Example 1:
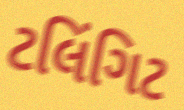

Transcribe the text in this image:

ટલિંગિટ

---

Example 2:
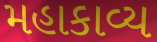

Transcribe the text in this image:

મહાકાવ્ય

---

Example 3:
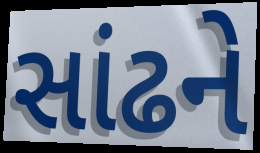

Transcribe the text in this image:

સાંઢને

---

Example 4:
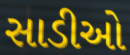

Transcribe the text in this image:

સાડીઓ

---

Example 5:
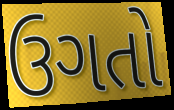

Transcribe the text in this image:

ઉગતો